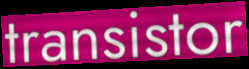
transistor